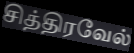
சித்திரவேல்